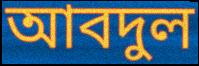
আবদুল